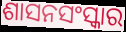
ଶାସନସଂସ୍କାର